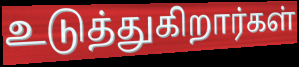
உடுத்துகிறார்கள்